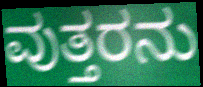
ವುತ್ತರನು